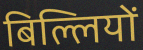
बिल्लियों